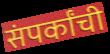
संपर्कांची